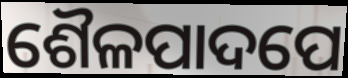
ଶୈଳପାଦପେ